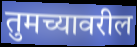
तुमच्यावरील